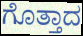
ಗೊತ್ತಾದ